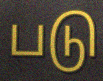
படு